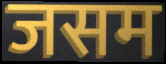
जसम